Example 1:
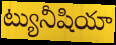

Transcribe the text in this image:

ట్యునీషియా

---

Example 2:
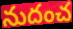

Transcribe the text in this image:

నుదంచ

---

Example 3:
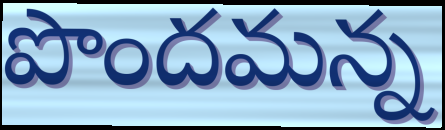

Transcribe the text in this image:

పొందమన్న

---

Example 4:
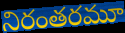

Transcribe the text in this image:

నిరంతరమూ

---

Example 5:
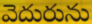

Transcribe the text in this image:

వెదురును